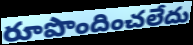
రూపొందించలేదు